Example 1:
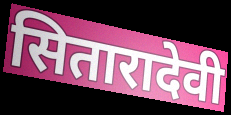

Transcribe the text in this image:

सितारादेवी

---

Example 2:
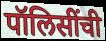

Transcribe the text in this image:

पॉलिसींची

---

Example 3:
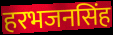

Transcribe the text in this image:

हरभजनसिंह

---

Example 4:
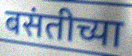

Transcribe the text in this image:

बसंतीच्या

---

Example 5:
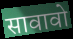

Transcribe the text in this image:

सावावो